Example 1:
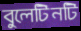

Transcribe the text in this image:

বুলেটিনটি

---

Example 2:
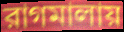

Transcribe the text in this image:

রাগমালায়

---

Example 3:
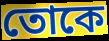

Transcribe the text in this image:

তোকে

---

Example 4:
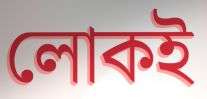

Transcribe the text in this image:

লোকই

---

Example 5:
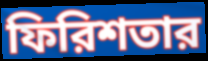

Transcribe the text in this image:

ফিরিশতার